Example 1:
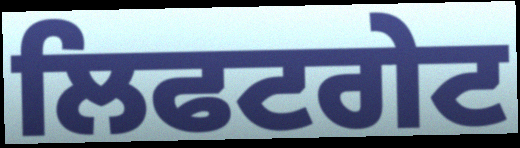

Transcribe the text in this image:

ਲਿਫਟਗੇਟ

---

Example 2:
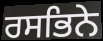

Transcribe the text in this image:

ਰਸਭਿਨੇ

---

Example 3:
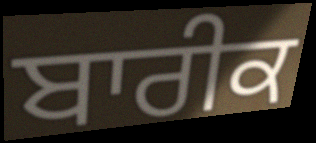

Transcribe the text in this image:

ਬਾਰੀਕ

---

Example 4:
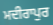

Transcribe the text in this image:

ਮਦੀਰਾਪੁਰ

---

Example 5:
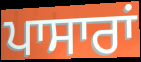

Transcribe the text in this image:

ਪਾਸਾਰਾਂ